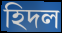
হিদল